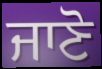
ਜਾਣੋ